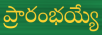
ప్రారంభయ్యే